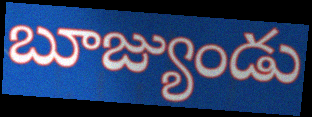
బూజ్యుండు